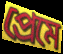
প্ৰেমে